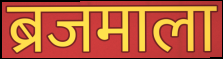
ब्रजमाला